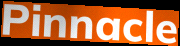
Pinnacle